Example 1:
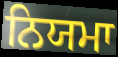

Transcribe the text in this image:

ਨਿਯਮਾ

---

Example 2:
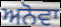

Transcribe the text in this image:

ਅਨੋਵਾ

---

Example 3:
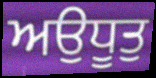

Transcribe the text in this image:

ਅਉਧੂਤੁ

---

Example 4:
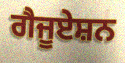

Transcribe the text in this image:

ਗੈਜੂਏਸ਼ਨ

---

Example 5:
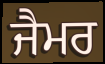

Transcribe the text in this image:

ਜੈਮਰ